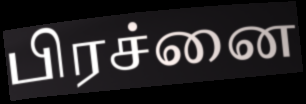
பிரச்னை